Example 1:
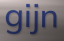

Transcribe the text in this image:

gijn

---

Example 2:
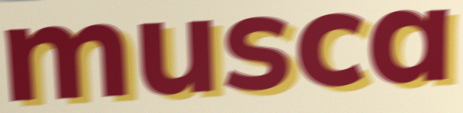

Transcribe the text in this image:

musca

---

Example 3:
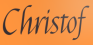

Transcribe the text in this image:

Christof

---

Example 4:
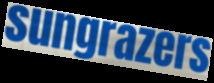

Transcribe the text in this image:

sungrazers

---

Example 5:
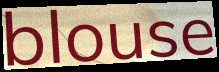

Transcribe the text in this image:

blouse